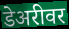
डेअरीवर